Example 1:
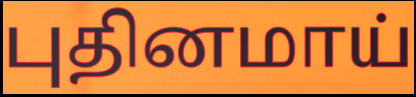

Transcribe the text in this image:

புதினமாய்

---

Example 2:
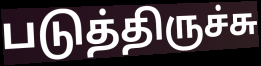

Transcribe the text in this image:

படுத்திருச்சு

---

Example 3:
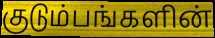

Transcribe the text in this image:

குடும்பங்களின்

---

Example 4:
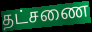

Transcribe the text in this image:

தட்சணை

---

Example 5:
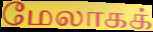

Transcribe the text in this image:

மேலாகக்